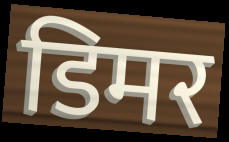
डिमर